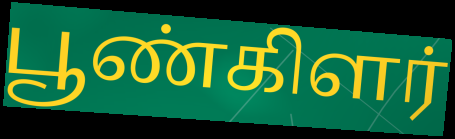
பூண்கிளர்